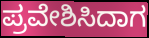
ಪ್ರವೇಶಿಸಿದಾಗ